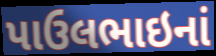
પાઉલભાઇનાં